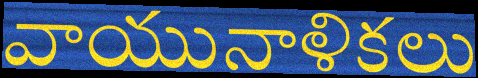
వాయునాళికలు